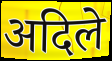
अदिले